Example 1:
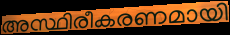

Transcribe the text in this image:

അസ്ഥിരീകരണമായി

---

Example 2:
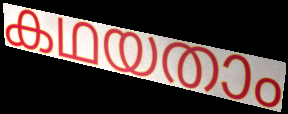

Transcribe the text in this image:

കഥയതാം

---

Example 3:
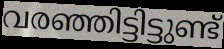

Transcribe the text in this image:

വരഞ്ഞിട്ടിട്ടുണ്ട്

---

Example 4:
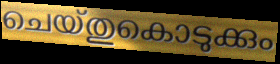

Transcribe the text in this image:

ചെയ്തുകൊടുക്കും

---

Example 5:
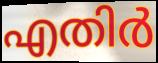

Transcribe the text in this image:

എതിർ